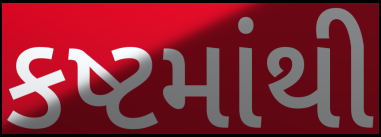
કષ્ટમાંથી